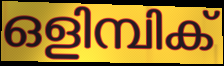
ഒളിമ്പിക്